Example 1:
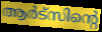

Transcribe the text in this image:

ആർട്സിന്റെ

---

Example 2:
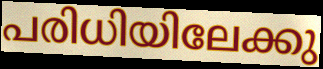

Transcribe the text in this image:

പരിധിയിലേക്കു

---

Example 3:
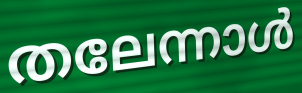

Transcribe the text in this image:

തലേന്നാൾ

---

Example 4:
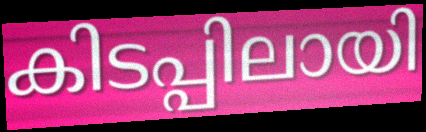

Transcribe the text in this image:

കിടപ്പിലായി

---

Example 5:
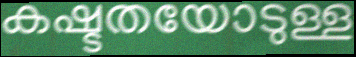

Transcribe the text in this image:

കഷ്ടതയോടുള്ള